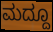
ಮದ್ದೂ